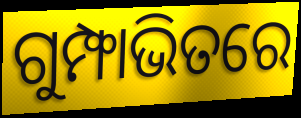
ଗୁମ୍ଫାଭିତରେ